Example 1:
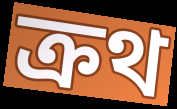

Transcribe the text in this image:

ক্রথ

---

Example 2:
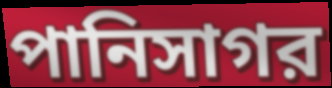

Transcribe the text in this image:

পানিসাগর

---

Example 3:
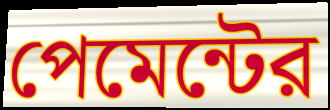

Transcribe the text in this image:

পেমেন্টের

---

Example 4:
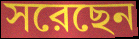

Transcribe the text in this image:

সরেছেন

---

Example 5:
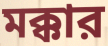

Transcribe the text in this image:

মক্কার